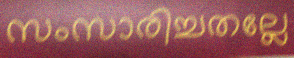
സംസാരിച്ചതല്ലേ